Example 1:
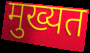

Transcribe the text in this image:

मुख्यत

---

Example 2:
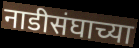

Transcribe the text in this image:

नाडीसंघाच्या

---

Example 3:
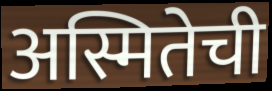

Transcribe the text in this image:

अस्मितेची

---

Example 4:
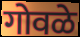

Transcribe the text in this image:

गोवळे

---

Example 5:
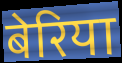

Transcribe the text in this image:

बेरिया